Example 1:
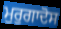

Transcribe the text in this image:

ਮੁਰੁਗਾਦੋਸ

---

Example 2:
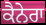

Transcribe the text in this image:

ਕੈਨੇਰਾ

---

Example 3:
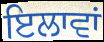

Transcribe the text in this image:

ਇਲਾਵਾਂ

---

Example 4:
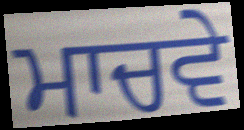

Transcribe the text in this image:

ਮਾਚਵੇ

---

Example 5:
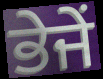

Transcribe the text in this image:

ਭੇਜੇਂ